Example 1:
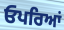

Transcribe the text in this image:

ਓਪਰਿਆਂ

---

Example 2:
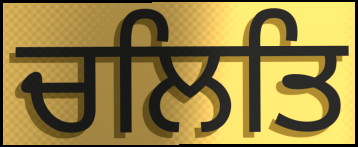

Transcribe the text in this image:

ਚਲਿਤਿ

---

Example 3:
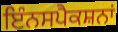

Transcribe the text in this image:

ਇੰਨਸਪੈਕਸ਼ਨਾਂ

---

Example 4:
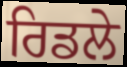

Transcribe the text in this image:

ਰਿਡਲੇ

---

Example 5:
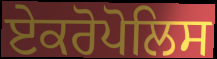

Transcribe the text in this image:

ਏਕਰੋਪੋਲਿਸ